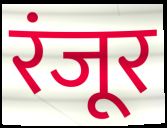
रंजूर